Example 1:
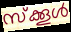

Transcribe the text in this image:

സ്ക്കൂൾ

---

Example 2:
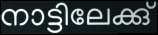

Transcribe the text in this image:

നാട്ടിലേക്കു്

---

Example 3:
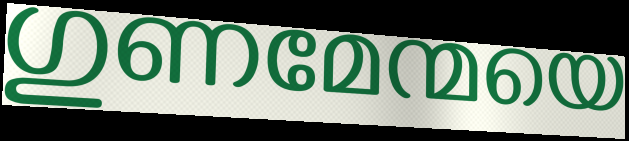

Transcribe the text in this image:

ഗുണമേന്മയെ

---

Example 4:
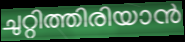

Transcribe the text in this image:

ചുറ്റിത്തിരിയാൻ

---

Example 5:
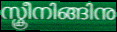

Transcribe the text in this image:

സ്ക്രീനിങ്ങിനു